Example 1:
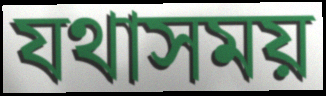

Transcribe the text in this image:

যথাসময়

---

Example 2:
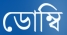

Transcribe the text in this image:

ডোম্বি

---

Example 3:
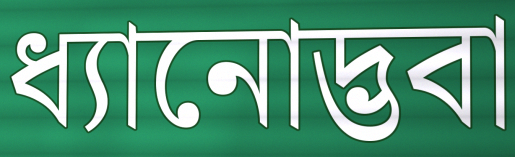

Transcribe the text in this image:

ধ্যানোদ্ভবা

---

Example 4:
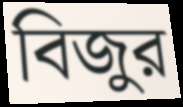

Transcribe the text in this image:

বিজুর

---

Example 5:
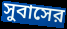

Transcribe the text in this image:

সুবাসের